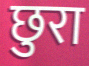
छुरा